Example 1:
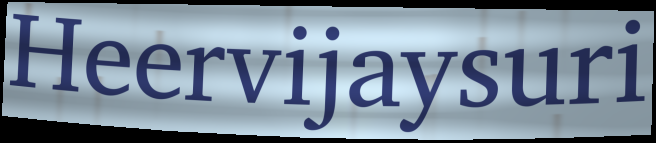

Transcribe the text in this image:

Heervijaysuri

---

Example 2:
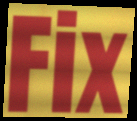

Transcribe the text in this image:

Fix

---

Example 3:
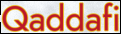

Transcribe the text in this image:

Qaddafi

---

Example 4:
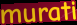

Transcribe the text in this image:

murati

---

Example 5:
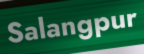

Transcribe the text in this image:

Salangpur